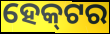
ହେକ୍‌ଟର